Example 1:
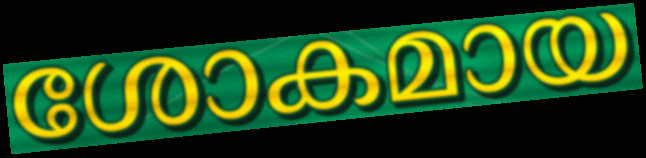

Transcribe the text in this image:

ശോകമായ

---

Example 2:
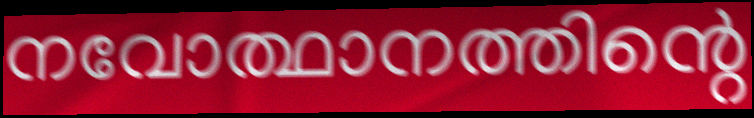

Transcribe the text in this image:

നവോത്ഥാനത്തിന്റെ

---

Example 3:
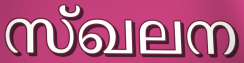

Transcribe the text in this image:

സ്ഖലന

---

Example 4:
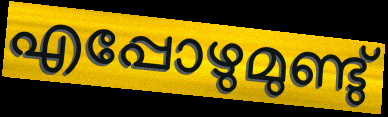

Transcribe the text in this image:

എപ്പോഴുമുണ്ടു്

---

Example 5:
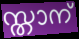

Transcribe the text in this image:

സ്താന്